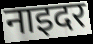
नाइदर